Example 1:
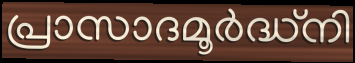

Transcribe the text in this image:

പ്രാസാദമൂർദ്ധ്നി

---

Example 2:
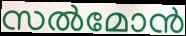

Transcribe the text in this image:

സൽമോൻ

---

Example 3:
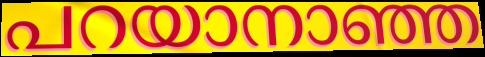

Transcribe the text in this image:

പറയാനാഞ്ഞ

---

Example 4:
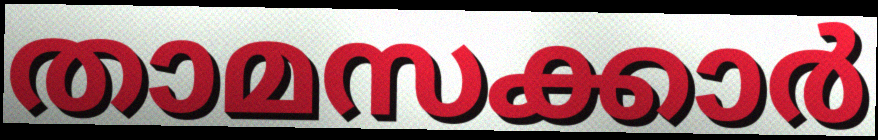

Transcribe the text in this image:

താമസക്കാർ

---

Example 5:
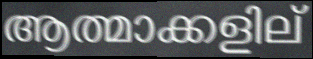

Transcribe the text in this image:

ആത്മാക്കളില്